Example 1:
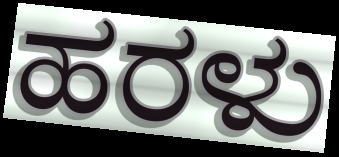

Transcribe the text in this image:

ಹರಳು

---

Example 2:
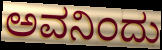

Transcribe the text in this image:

ಅವನಿಂದು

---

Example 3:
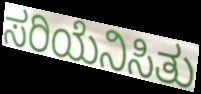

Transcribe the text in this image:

ಸರಿಯೆನಿಸಿತು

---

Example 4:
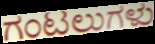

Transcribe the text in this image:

ಗಂಟಲುಗಳು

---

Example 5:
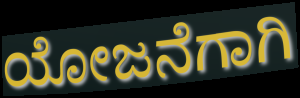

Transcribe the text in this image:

ಯೋಜನೆಗಾಗಿ